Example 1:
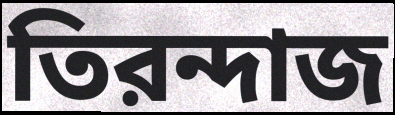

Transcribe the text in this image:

তিরন্দাজ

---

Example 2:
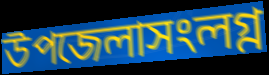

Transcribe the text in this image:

উপজেলাসংলগ্ন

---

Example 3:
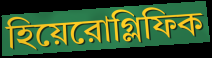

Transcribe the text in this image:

হিয়েরোগ্লিফিক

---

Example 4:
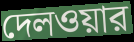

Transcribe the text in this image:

দেলওয়ার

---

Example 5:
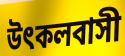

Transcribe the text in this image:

উৎকলবাসী